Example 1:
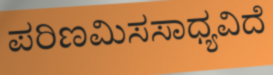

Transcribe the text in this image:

ಪರಿಣಮಿಸಸಾಧ್ಯವಿದೆ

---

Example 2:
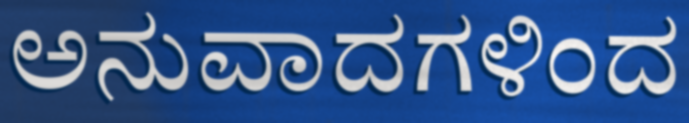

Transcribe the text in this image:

ಅನುವಾದಗಳಿಂದ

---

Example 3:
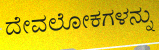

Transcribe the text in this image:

ದೇವಲೋಕಗಳನ್ನು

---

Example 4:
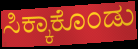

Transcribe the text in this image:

ಸಿಕ್ಕಾಕೊಂಡು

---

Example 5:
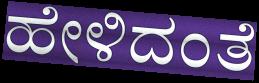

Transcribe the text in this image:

ಹೇಳಿದಂತೆ